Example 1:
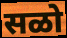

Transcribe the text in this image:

सळो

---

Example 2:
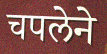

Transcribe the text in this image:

चपलेने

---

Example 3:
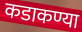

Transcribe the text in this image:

कडाकण्या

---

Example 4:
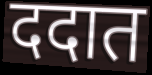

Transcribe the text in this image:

ददात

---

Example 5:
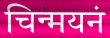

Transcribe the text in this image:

चिन्मयनं